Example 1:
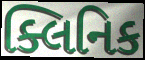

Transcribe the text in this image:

ક્લિનિક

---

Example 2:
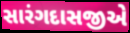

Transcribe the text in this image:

સારંગદાસજીએ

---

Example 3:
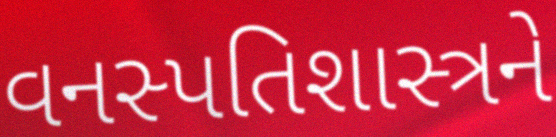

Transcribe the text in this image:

વનસ્પતિશાસ્ત્રને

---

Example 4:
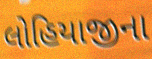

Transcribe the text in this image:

લોહિયાજીના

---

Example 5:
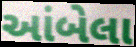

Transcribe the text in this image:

આંબેલા